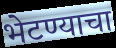
भेटण्याचा